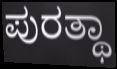
ಪುರತ್ಥಾ